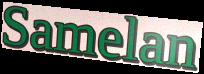
Samelan